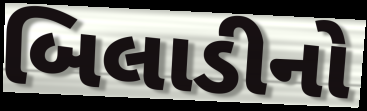
બિલાડીનો